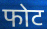
फोट